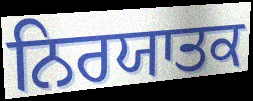
ਨਿਰਯਾਤਕ